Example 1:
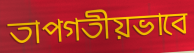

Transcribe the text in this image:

তাপগতীয়ভাবে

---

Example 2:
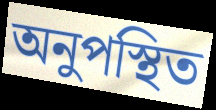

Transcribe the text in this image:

অনুপস্থিত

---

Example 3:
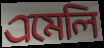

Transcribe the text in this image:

এমেলি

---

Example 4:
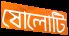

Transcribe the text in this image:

ষোলোটি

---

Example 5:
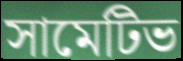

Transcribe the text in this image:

সামেটিভ